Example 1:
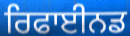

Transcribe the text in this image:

ਰਿਫਾਈਨਡ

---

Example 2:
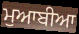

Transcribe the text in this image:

ਮੁਆਬੀਆ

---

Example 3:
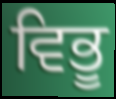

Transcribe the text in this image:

ਵਿਭੂ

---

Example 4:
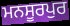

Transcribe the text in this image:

ਮਨਸੂਰਪੁਰ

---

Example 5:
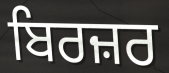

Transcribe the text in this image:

ਬਿਰਜ਼ਰ